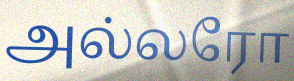
அல்லரோ